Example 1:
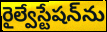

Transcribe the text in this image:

రైల్వేస్టేషన్‌ను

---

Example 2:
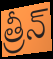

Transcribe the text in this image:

త్రీన్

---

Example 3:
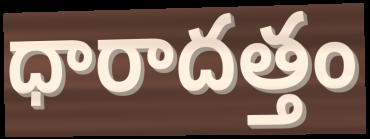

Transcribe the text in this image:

ధారాదత్తం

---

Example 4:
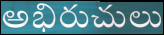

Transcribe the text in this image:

అభిరుచులు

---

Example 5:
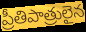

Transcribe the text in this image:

ప్రీతిపాత్రులైన